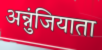
अन्नुंजियाता